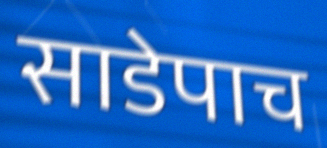
साडेपाच